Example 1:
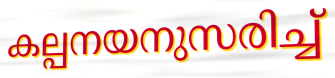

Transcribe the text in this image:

കല്പനയനുസരിച്ച്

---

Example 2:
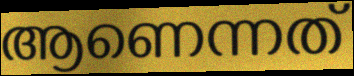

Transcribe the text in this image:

ആണെന്നത്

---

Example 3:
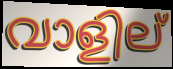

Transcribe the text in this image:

വാളില്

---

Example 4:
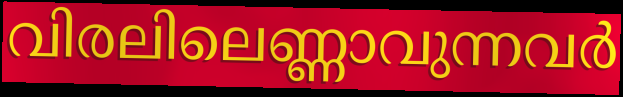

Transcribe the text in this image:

വിരലിലെണ്ണാവുന്നവർ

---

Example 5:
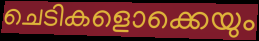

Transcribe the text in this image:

ചെടികളൊക്കെയും